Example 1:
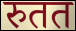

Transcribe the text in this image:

रुतत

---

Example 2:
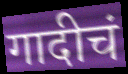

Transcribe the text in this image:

गादीचं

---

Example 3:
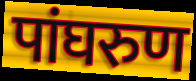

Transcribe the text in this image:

पांघरुण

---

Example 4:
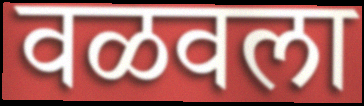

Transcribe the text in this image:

वळवला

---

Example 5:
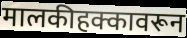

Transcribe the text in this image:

मालकीहक्कावरून